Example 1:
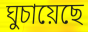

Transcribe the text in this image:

ঘুচায়েছে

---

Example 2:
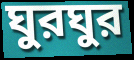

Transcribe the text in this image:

ঘুরঘুর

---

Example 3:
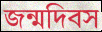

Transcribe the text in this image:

জন্মদিবস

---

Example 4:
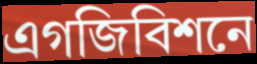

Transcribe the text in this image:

এগজিবিশনে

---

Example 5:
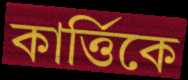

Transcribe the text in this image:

কার্ত্তিকে